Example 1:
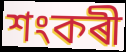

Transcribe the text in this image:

শংকৰী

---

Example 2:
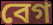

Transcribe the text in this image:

বেগ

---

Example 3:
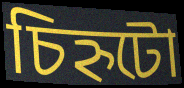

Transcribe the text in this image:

চিহ্নটো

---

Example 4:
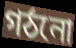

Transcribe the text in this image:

গঠনো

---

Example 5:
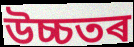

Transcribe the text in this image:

উচ্চতৰ